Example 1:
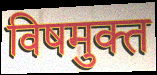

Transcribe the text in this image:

विषमुक्त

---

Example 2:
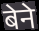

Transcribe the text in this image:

बेने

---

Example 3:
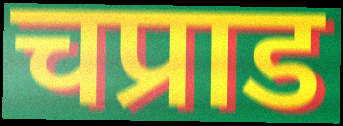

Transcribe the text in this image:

चप्राड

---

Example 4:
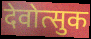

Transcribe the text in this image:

देवोत्सुक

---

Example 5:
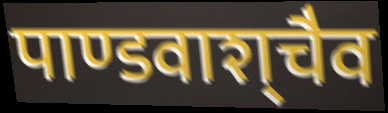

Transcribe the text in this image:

पाण्डवाश्चैव